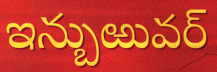
ఇన్బుఱువర్